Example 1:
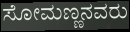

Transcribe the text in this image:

ಸೋಮಣ್ಣನವರು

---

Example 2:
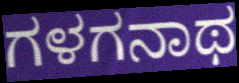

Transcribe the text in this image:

ಗಳಗನಾಥ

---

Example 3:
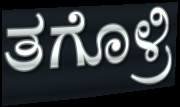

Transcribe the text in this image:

ತಗೊಳ್ರಿ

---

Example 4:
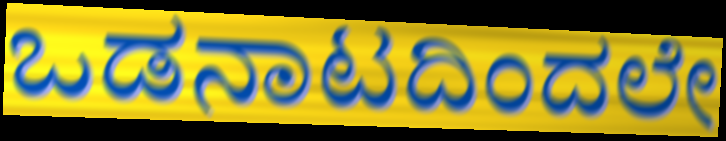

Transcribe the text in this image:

ಒಡನಾಟದಿಂದಲೇ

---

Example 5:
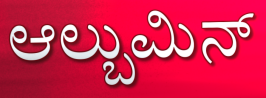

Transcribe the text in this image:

ಆಲ್ಬುಮಿನ್